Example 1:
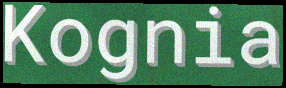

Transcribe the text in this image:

Kognia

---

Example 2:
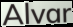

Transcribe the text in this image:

Alvar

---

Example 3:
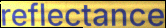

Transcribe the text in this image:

reflectance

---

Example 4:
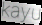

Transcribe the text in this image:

kayu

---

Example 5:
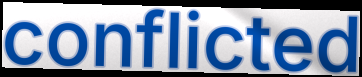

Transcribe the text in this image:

conflicted